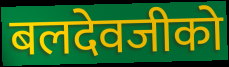
बलदेवजीको